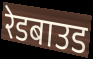
रेडबाउड